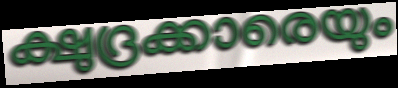
ക്ഷുദ്രക്കാരെയും